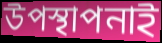
উপস্থাপনাই